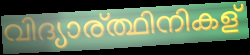
വിദ്യാര്ത്ഥിനികള്